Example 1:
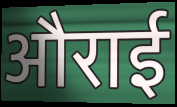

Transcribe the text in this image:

औराई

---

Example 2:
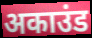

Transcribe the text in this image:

अकाउंड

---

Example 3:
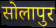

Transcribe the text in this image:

सोलापुर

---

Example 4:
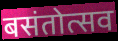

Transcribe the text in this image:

बसंतोत्सव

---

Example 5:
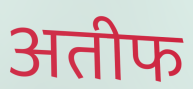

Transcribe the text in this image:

अतीफ